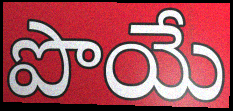
పొయే